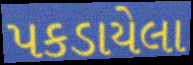
પકડાયેલા